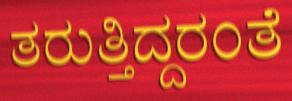
ತರುತ್ತಿದ್ದರಂತೆ